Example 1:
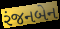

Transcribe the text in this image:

રંજનબેન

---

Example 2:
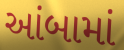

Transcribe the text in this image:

આંબામાં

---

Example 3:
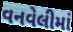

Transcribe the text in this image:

વનવેલીમાં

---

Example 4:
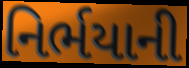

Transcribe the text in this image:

નિર્ભયાની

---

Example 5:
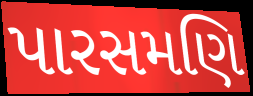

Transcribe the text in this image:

પારસમણિ